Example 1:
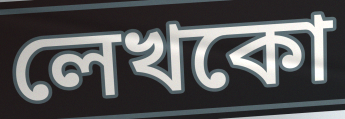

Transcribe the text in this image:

লেখকো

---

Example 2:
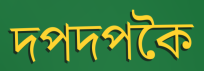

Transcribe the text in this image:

দপদপকৈ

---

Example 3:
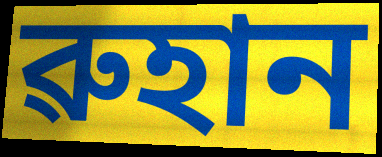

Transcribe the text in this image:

ৱুহান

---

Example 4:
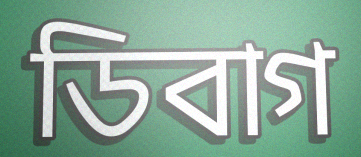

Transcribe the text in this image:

ডিবাগ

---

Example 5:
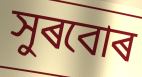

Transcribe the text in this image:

সুৰবোৰ